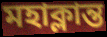
মহাক্লান্ত